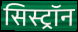
सिस्ट्रॉन